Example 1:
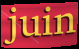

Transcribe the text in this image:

juin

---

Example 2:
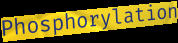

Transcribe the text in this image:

Phosphorylation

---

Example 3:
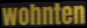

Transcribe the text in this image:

wohnten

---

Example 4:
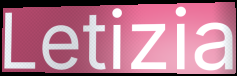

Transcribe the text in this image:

Letizia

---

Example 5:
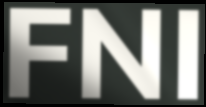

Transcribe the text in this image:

FNI